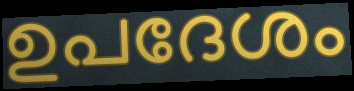
ഉപദേശം